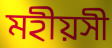
মহীয়সী